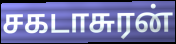
சகடாசுரன்